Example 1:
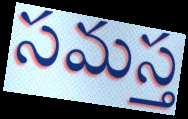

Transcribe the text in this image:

సమస్త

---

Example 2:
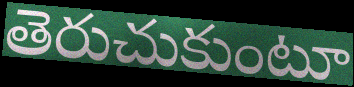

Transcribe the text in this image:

తెరుచుకుంటూ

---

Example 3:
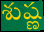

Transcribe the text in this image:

శుష్ణ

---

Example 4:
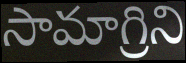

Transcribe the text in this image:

సామాగ్రిని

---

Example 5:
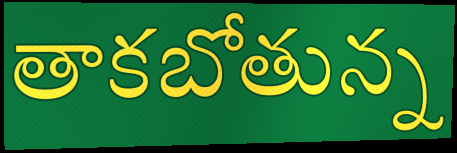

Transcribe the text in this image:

తాకబోతున్న